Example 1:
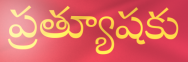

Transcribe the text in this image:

ప్రత్యూషకు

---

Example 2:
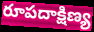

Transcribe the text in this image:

రూపదాక్షిణ్య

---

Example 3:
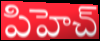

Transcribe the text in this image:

పిహెచ్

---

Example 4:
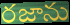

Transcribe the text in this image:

రజాను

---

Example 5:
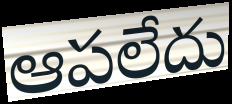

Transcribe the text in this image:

ఆపలేదు